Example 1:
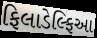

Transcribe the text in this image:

ફિલાડેલ્ફિઆ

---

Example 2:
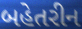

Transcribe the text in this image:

બહેતરીન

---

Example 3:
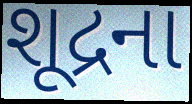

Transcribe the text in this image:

શૂદ્રના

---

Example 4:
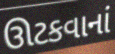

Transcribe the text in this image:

ઊટકવાનાં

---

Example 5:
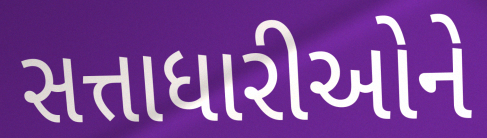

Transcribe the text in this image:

સત્તાધારીઓને